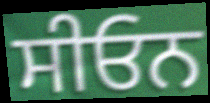
ਸੀਓਨ